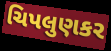
ચિપલુણકર